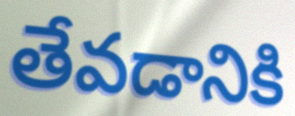
తేవడానికి